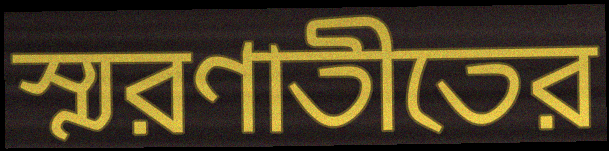
স্মরণাতীতের